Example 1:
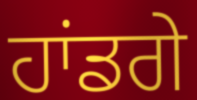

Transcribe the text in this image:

ਹਾਂਡਗੇ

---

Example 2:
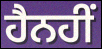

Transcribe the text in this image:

ਹੈਨਹੀਂ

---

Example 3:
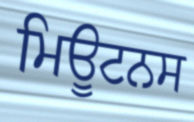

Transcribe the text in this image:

ਮਿਊਟਨਸ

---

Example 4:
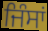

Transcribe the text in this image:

ਜਿੰਸਾਂ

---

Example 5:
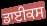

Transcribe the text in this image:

ਡਾਈਕਸ